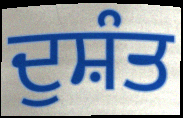
ਦੁਸ਼ੰਤ